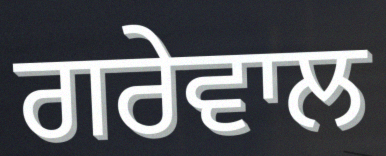
ਗਰੇਵਾਲ